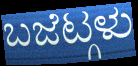
ಬಜೆಟ್ಗಳು